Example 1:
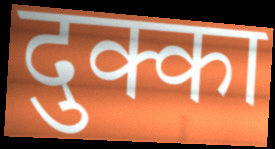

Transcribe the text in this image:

दुक्का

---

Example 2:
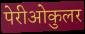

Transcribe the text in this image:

पेरीओकुलर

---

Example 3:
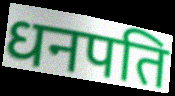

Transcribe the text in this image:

धनपति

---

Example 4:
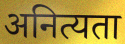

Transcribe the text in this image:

अनित्यता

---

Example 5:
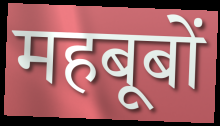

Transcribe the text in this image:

महबूबों